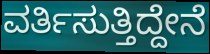
ವರ್ತಿಸುತ್ತಿದ್ದೇನೆ